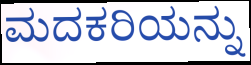
ಮದಕರಿಯನ್ನು